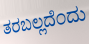
ತರಬಲ್ಲದೆಂದು